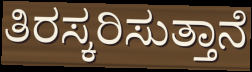
ತಿರಸ್ಕರಿಸುತ್ತಾನೆ